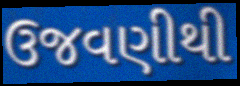
ઉજવણીથી